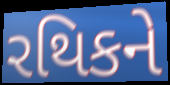
રથિકને